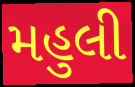
મહુલી